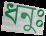
ধনুঃ